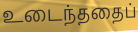
உடைந்ததைப்